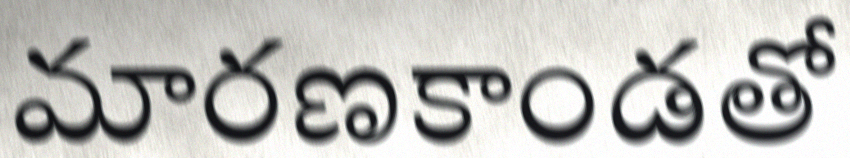
మారణకాండతో